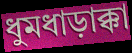
ধুমধাড়াক্কা